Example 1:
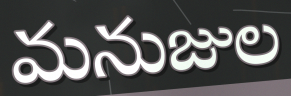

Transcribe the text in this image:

మనుజుల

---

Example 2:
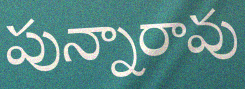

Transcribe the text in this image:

పున్నారావు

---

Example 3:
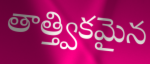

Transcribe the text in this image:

తాత్త్వికమైన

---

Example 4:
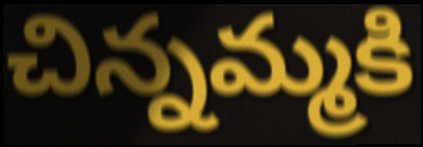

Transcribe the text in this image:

చిన్నమ్మకి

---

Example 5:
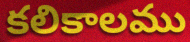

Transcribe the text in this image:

కలికాలము